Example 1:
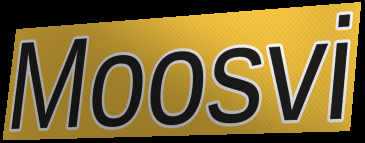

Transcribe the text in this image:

Moosvi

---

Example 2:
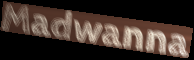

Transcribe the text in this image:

Madwanna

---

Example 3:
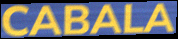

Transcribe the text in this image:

CABALA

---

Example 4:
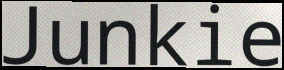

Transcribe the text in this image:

Junkie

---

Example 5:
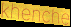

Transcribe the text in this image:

khenche